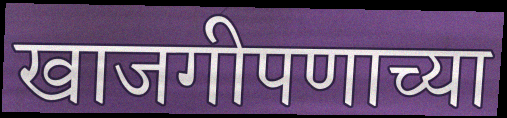
खाजगीपणाच्या